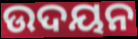
ଉଦୟନ